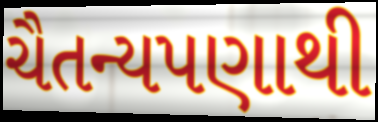
ચૈતન્યપણાથી